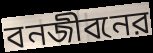
বনজীবনের